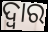
ଦ୍ୱାର